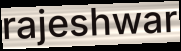
rajeshwar